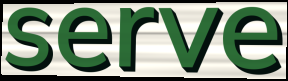
serve